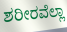
ಶರೀರವೆಲ್ಲಾ